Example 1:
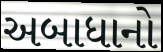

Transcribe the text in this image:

અબાધાનો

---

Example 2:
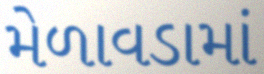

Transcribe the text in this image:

મેળાવડામાં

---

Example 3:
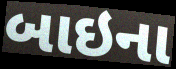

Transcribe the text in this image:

બાઇના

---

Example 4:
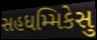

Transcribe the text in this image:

સહધમ્મિકેસુ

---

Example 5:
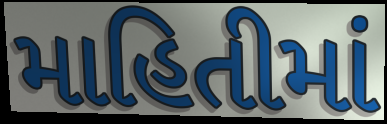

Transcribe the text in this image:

માહિતીમાં